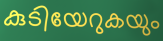
കുടിയേറുകയും